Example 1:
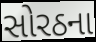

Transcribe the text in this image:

સોરઠના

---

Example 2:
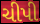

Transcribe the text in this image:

ચીપી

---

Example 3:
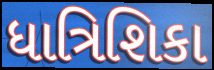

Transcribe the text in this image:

ધાત્રિશિકા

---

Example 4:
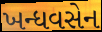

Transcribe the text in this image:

ખન્ધવસેન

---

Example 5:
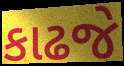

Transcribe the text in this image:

કાઢજે